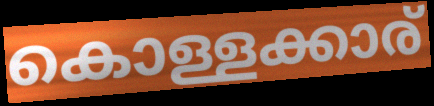
കൊള്ളക്കാര്